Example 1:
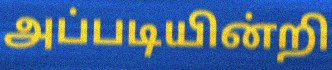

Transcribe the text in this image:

அப்படியின்றி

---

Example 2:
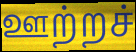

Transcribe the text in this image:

ஊற்றச்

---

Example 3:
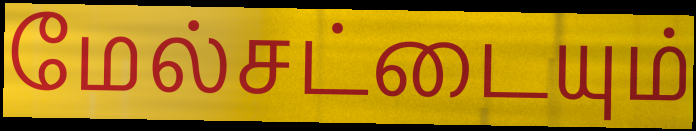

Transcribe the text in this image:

மேல்சட்டையும்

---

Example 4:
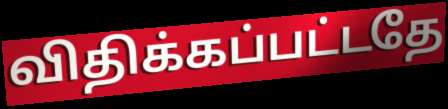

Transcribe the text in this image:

விதிக்கப்பட்டதே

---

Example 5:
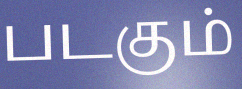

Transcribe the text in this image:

படகும்